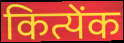
कित्येंक